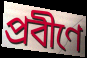
প্রবীণে